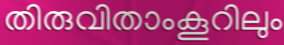
തിരുവിതാംകൂറിലും